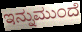
ಇನ್ನುಮುಂದೆ